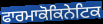
ਫਾਰਮਾਕੋਕਿਨੇਟਿਕ